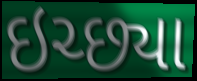
ઇચ્છ્યા